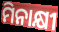
ମିନାକ୍ଷୀ